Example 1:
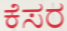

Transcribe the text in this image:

ಕೆಸರ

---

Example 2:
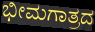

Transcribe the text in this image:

ಭೀಮಗಾತ್ರದ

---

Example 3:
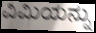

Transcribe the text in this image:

ವಿಮಿಯನ್ನು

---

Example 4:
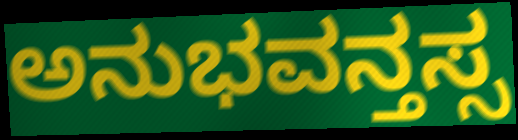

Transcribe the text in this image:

ಅನುಭವನ್ತಸ್ಸ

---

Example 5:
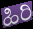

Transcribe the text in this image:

ಹಿರಿ